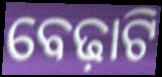
ବେଢ଼ାଟି